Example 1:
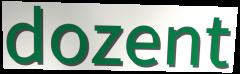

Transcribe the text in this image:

dozent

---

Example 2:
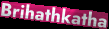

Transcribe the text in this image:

Brihathkatha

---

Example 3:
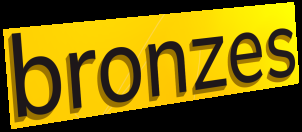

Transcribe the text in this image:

bronzes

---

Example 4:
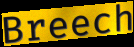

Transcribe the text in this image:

Breech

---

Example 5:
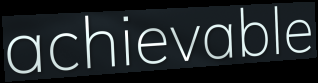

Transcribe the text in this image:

achievable